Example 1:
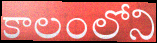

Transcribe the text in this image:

కాలంలోని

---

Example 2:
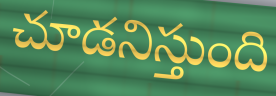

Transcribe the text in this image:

చూడనిస్తుంది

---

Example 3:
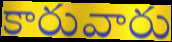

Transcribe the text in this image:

కారువారు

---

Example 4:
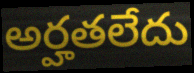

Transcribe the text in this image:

అర్హతలేదు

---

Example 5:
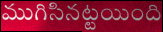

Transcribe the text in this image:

ముగిసినట్టయింది